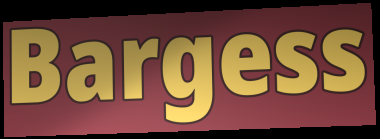
Bargess